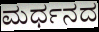
ಮರ್ಧನದ